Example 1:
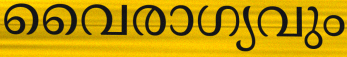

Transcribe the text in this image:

വൈരാഗ്യവും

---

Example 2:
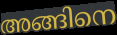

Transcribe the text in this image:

അങ്ങിനെ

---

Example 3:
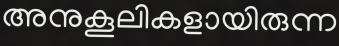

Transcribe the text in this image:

അനുകൂലികളായിരുന്ന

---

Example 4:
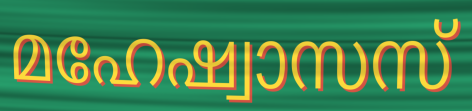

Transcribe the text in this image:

മഹേഷ്വാസസ്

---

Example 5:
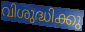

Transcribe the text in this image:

വിശുദ്ധിക്കു